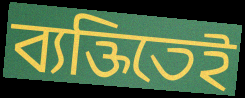
ব্যক্তিতেই